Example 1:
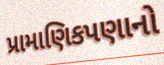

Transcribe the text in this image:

પ્રામાણિકપણાનો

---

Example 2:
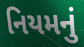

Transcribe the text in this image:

નિયમનું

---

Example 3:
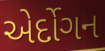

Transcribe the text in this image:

એર્દોગન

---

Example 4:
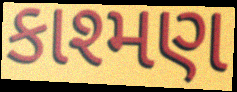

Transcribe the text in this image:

કાશ્મણ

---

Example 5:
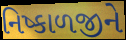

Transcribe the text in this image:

નિષ્કાળજીને